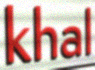
khal